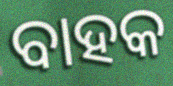
ବାହକ